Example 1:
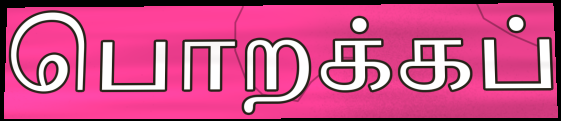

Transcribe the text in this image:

பொறக்கப்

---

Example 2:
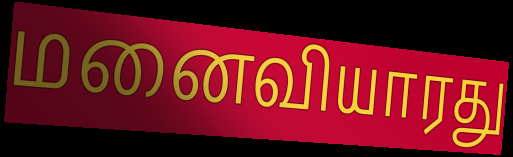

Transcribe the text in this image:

மனைவியாரது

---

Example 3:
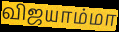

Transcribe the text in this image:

விஜயாம்மா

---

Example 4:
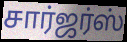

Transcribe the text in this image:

சார்ஜர்ஸ்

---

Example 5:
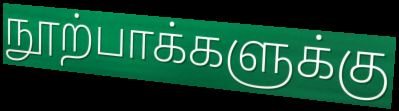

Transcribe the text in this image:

நூற்பாக்களுக்கு